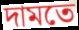
দামতে